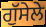
ਗੁੱਸੇਲੇ